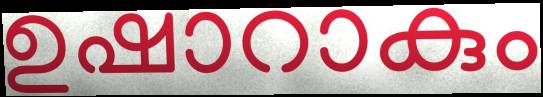
ഉഷാറാകും